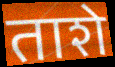
ताशे